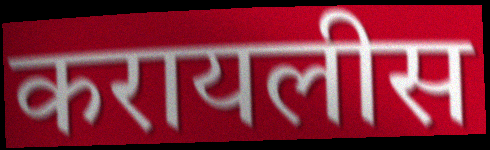
करायलीस